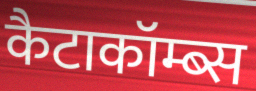
कैटाकॉम्ब्स